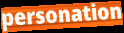
personation